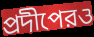
প্রদীপেরও